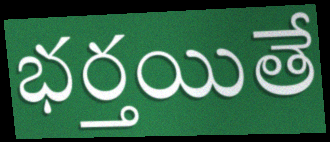
భర్తయితే